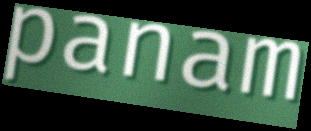
panam